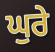
ਘੁਰੇ